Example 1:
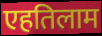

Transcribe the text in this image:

एहतिलाम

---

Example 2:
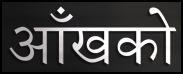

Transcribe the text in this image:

आँखको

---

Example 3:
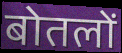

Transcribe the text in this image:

बोतलों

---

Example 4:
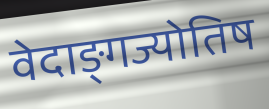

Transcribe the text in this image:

वेदाङ्गज्योतिष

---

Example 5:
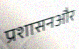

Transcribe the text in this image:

प्रशासनऔर